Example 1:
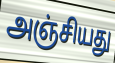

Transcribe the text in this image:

அஞ்சியது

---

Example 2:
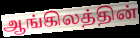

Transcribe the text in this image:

ஆங்கிலத்தின்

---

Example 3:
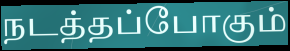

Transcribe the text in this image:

நடத்தப்போகும்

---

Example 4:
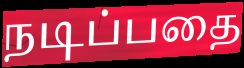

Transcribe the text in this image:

நடிப்பதை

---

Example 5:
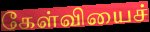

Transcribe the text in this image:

கேள்வியைச்